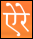
ऐरे